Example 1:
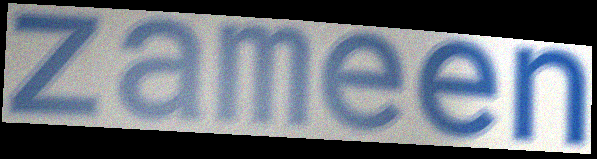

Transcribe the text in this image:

zameen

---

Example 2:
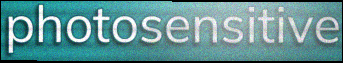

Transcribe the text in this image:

photosensitive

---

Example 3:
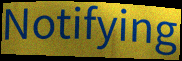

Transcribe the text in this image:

Notifying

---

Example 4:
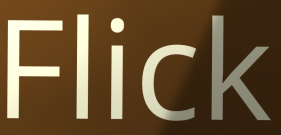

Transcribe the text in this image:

Flick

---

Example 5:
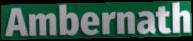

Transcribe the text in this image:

Ambernath